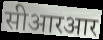
सीआरआर